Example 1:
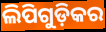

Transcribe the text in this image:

ଲିପିଗୁଡ଼ିକର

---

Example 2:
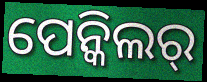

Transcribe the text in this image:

ପେନ୍କିଲର୍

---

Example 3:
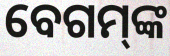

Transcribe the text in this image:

ବେଗମ୍‌ଙ୍କ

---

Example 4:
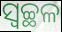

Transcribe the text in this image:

ସ୍ବଚ୍ଛଳ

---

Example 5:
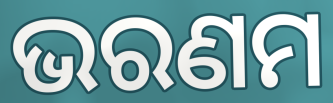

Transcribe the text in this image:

ଭରଣମ